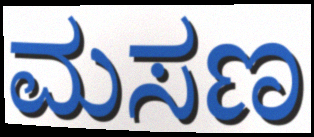
ಮಸಣ